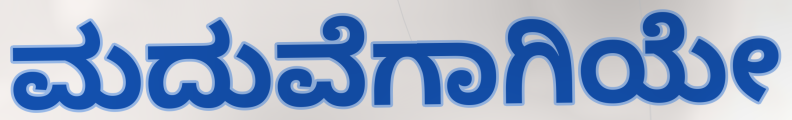
ಮದುವೆಗಾಗಿಯೇ